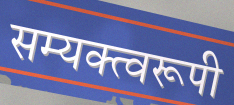
सम्यक्त्वरूपी